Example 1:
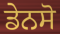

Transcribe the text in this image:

ਡੇਨਸੋ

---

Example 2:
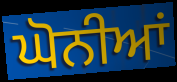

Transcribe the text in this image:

ਘੋਨੀਆਂ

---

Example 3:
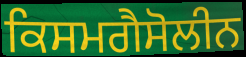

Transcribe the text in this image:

ਕਿਸਮਗੈਸੋਲੀਨ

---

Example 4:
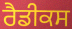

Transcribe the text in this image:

ਰੈਡੀਕਸ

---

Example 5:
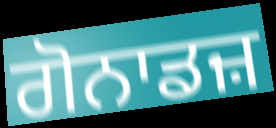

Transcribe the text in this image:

ਗੋਨਾਡਜ਼